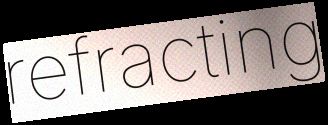
refracting